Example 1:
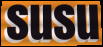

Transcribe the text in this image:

susu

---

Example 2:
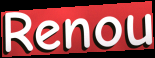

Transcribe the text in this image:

Renou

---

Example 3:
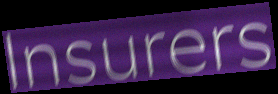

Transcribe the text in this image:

Insurers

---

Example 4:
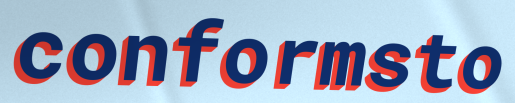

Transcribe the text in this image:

conformsto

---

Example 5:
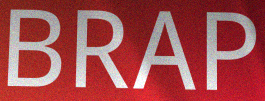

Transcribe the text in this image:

BRAP